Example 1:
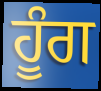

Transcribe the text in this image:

ਹੂੰਗ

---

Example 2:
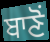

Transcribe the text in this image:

ਬਾਣੋਂ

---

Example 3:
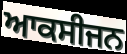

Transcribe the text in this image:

ਆਕਸੀਜਨ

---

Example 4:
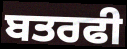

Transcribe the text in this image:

ਬਤਰਫੀ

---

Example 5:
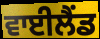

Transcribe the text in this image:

ਵਾਈਲੈਂਡ